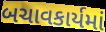
બચાવકાર્યમાં